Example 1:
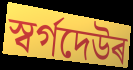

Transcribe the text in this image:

স্বৰ্গদেউৰ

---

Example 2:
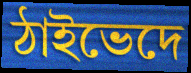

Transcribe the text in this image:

ঠাইভেদে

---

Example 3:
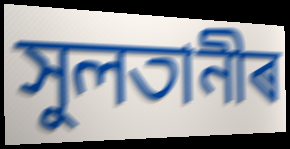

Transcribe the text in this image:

সুলতানীৰ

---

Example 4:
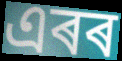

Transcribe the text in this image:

এৰৰ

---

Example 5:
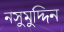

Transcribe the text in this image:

নসুমুদ্দিন